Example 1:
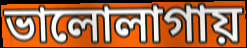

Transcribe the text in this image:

ভালোলাগায়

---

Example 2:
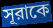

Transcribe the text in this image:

সূরাকে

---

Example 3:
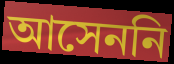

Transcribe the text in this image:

আসেননি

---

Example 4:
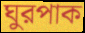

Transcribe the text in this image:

ঘুরপাক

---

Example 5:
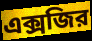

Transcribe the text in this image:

এক্সজির